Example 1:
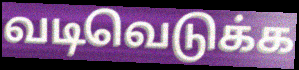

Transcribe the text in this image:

வடிவெடுக்க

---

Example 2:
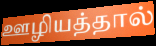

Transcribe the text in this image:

ஊழியத்தால்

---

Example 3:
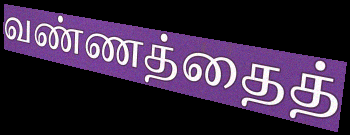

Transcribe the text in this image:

வண்ணத்தைத்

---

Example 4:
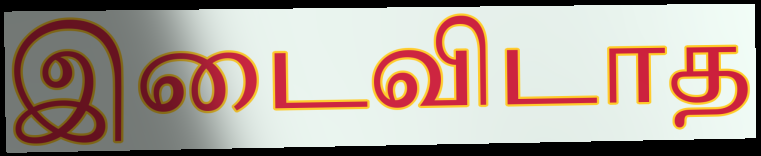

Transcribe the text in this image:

இடைவிடாத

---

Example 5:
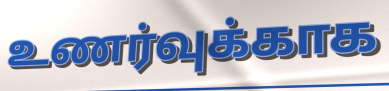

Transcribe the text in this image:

உணர்வுக்காக